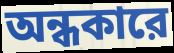
অন্ধকারে